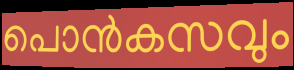
പൊൻകസവും